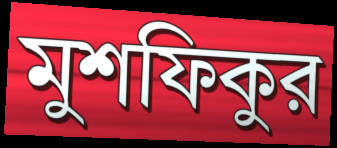
মুশফিকুর